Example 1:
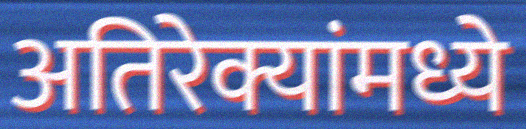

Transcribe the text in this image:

अतिरेक्यांमध्ये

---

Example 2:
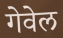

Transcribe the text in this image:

गेवेल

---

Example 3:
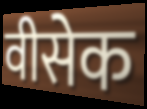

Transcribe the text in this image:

वीसेक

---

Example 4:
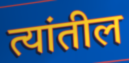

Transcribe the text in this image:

त्‍यांतील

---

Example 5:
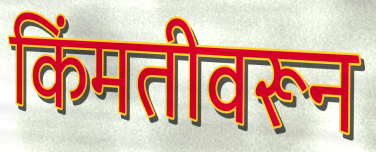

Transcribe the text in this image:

किंमतीवरून